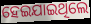
ହେଇଯାଇଥିଲେ